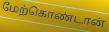
மேற்கொண்டான்